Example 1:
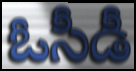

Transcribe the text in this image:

ఓసీడీ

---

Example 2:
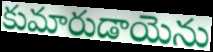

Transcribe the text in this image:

కుమారుడాయెను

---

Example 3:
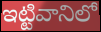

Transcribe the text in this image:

ఇట్టివానిలో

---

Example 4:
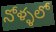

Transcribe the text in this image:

నోళ్ళలో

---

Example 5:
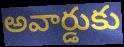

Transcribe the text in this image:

అవార్డుకు